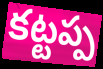
కట్టప్ప